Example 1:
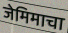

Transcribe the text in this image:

जेमिमाचा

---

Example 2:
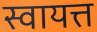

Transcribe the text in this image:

स्वायत्त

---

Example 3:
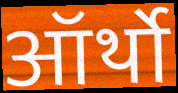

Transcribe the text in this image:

ऑर्थो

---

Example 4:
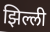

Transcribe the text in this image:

झिल्ली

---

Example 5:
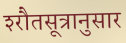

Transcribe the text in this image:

श्रौतसूत्रानुसार